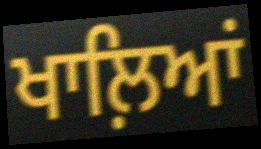
ਖਾਲ਼ਿਆਂ